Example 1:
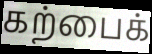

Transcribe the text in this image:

கற்பைக்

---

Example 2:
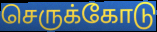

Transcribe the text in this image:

செருக்கோடு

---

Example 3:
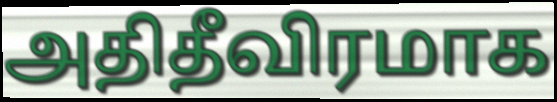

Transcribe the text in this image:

அதிதீவிரமாக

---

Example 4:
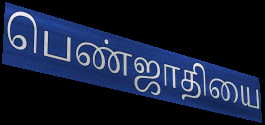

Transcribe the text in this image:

பெண்ஜாதியை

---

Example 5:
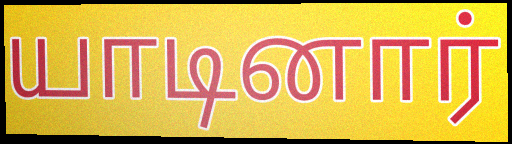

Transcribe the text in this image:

யாடினார்